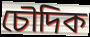
চৌদিক